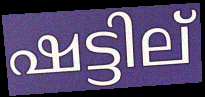
ഷട്ടില്